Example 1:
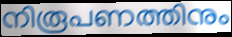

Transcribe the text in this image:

നിരൂപണത്തിനും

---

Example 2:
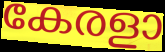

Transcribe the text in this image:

കേരളാ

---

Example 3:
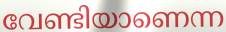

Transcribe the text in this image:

വേണ്ടിയാണെന്ന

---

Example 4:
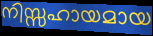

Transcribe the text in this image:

നിസ്സഹായമായ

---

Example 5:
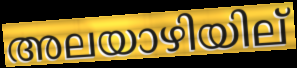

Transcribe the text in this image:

അലയാഴിയില്